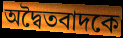
অদ্বৈতবাদকে